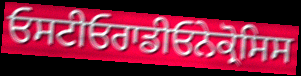
ਓਸਟੀਓਰਾਡੀਓਨੇਕ੍ਰੋਸਿਸ